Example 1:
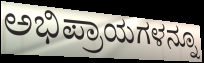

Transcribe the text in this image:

ಅಭಿಪ್ರಾಯಗಳನ್ನೂ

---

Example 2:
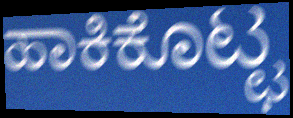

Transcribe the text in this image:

ಹಾಕಿಕೊಟ್ಟ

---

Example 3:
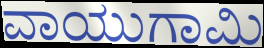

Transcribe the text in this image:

ವಾಯುಗಾಮಿ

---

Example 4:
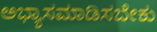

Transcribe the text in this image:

ಅಭ್ಯಾಸಮಾಡಿಸಬೇಕು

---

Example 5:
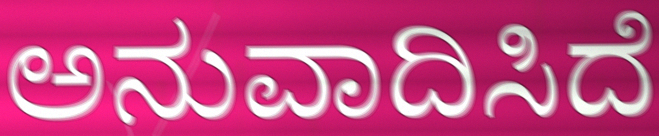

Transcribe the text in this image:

ಅನುವಾದಿಸಿದೆ